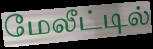
மேலீட்டில்